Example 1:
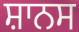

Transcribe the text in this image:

ਸ਼ਾਨਸ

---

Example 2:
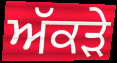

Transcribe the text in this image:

ਅੱਕੜੇ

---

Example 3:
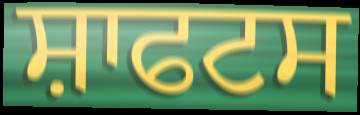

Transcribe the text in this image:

ਸ਼ਾਫਟਸ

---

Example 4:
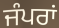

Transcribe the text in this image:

ਜੰਪਰਾਂ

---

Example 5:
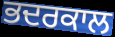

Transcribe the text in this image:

ਭਦਰਕਾਲ